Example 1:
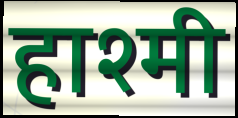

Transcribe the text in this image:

हाश्मी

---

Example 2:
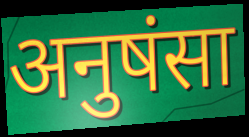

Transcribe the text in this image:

अनुषंसा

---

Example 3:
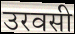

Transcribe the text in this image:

उरवसी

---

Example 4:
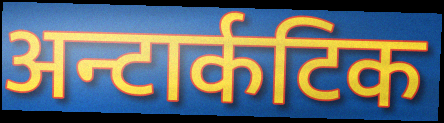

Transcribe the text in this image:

अन्टार्कटिक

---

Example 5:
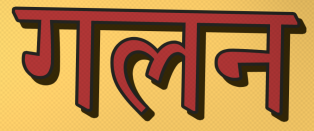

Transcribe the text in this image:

गलन